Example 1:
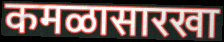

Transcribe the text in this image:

कमळासारखा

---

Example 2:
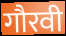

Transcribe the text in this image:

गौरवी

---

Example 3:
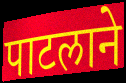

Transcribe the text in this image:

पाटलाने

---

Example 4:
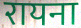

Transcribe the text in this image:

रायना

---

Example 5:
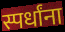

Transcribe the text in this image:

स्पर्धांना